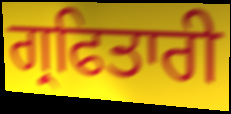
ਗ੍ਰਫਿਤਾਰੀ